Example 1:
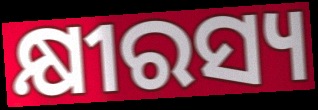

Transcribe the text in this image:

କ୍ଷୀରସ୍ୟ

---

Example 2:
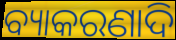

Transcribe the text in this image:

ବ୍ୟାକରଣାଦି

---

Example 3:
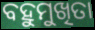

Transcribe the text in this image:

ବହୁମୁଖିତା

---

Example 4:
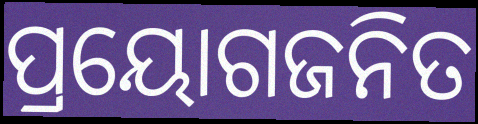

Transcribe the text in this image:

ପ୍ରୟୋଗଜନିତ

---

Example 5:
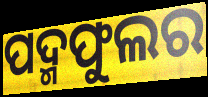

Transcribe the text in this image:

ପଦ୍ମଫୁଲର